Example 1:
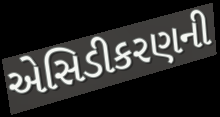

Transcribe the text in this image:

એસિડીકરણની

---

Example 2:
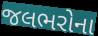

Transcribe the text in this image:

જલભરોના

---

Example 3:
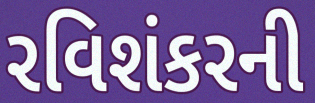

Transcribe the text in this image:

રવિશંકરની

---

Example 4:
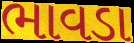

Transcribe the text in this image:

ભાવડા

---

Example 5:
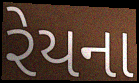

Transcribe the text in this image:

રેયના